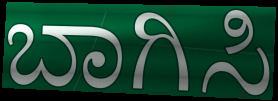
ಬಾಗಿಸಿ